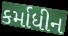
કર્માધીન